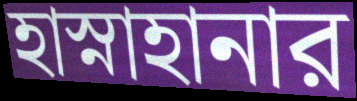
হাস্নাহানার